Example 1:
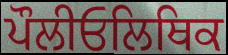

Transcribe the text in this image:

ਪੌਲੀਓਲਿਥਿਕ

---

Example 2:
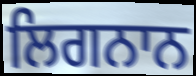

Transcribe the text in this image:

ਲਿਗਨਾਨ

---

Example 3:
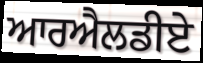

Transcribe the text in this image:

ਆਰਐਲਡੀਏ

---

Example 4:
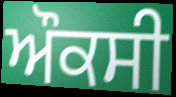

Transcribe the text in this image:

ਔਕਸੀ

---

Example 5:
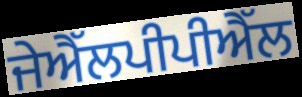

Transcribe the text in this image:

ਜੇਐੱਲਪੀਪੀਐੱਲ